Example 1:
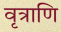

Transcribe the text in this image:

वृत्राणि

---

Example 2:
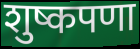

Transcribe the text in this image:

शुष्कपणा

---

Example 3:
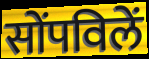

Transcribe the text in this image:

सोंपविलें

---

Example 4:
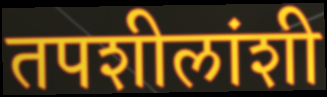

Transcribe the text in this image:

तपशीलांशी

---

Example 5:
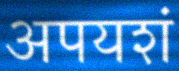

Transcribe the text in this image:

अपयशं